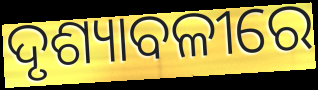
ଦୃଶ୍ୟାବଳୀରେ